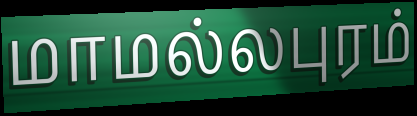
மாமல்லபுரம்